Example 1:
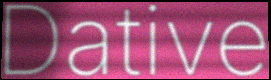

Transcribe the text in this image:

Dative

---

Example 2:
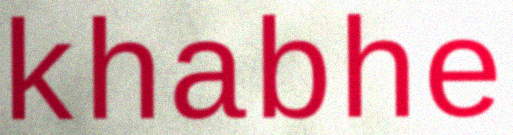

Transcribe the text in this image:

khabhe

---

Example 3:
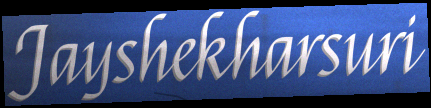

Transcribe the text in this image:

Jayshekharsuri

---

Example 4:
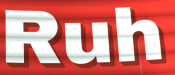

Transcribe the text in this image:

Ruh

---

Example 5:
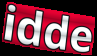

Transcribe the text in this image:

idde